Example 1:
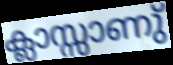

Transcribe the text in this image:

ക്ലാസ്സാണു്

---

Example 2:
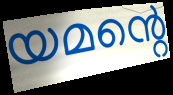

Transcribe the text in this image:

യമന്റെ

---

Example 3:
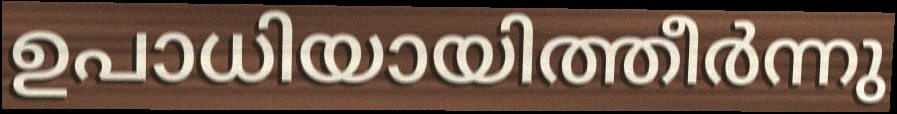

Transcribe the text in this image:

ഉപാധിയായിത്തീർന്നു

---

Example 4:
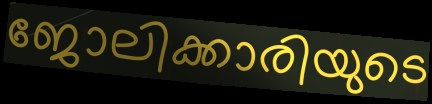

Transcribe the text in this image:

ജോലിക്കാരിയുടെ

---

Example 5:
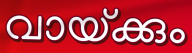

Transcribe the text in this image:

വായ്‌ക്കും